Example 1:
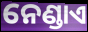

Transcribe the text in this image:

ନେଣ୍ଡାଏ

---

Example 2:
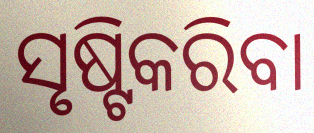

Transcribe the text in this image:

ସୃଷ୍ଟିକରିବା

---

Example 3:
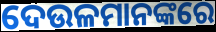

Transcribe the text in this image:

ଦେଉଳମାନଙ୍କରେ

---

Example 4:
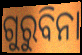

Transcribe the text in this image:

ଗୁରୁବିନା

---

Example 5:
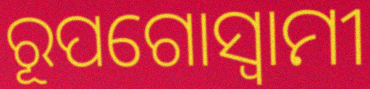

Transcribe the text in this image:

ରୂପଗୋସ୍ୱାମୀ